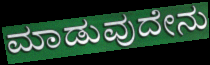
ಮಾಡುವುದೇನು